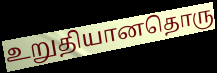
உறுதியானதொரு